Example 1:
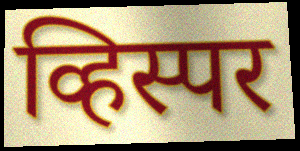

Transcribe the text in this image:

व्हिस्पर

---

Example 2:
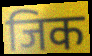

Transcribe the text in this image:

जिक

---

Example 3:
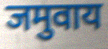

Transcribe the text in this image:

जमुवाय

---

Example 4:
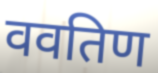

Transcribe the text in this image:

ववतिण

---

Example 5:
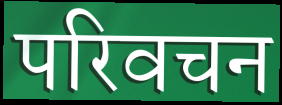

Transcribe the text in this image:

परिवचन